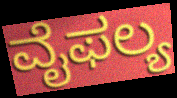
ವೈಫಲ್ಯ